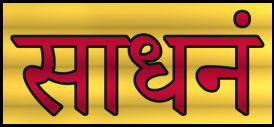
साधनं